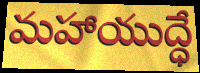
మహాయుద్ధే